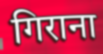
गिराना